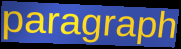
paragraph